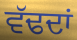
ਵੱਢਦਾਂ